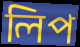
লিপ